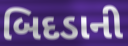
બિદડાની